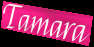
Tamara